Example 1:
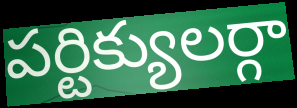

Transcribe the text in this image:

పర్టిక్యులర్గా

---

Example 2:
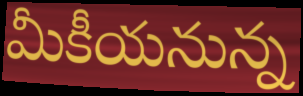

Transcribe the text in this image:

మీకీయనున్న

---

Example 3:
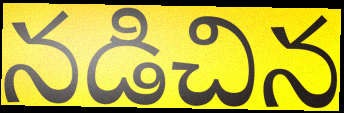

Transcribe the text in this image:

నడిచిన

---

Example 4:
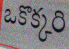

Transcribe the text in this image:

ఒకొక్కరి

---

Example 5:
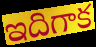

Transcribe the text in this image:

ఇదిగాక